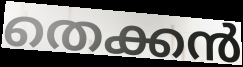
തെക്കൻ